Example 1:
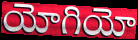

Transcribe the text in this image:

యోగియో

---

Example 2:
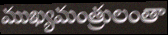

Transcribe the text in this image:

ముఖ్యమంత్రులంతా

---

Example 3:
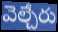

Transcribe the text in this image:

వెల్చేరు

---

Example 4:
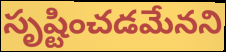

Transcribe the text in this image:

సృష్టించడమేనని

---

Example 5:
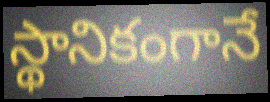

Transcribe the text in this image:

స్థానికంగానే